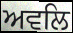
ਅਵਲਿ